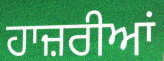
ਹਾਜ਼ਰੀਆਂ